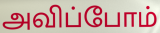
அவிப்போம்